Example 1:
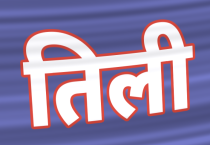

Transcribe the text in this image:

तिली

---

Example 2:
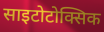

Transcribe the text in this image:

साइटोटोक्सिक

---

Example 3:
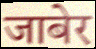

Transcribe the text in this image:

जाबेर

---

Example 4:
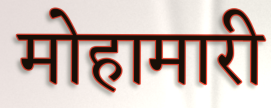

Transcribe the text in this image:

मोहामारी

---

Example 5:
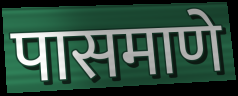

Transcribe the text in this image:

पासमाणे